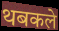
थबकले